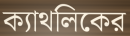
ক্যাথলিকের